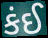
કંઈ